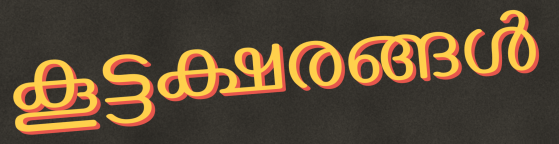
കൂട്ടക്ഷരങ്ങൾ